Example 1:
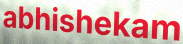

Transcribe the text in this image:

abhishekam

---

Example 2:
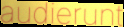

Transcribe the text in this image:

audierunt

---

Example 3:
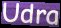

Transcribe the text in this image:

Udra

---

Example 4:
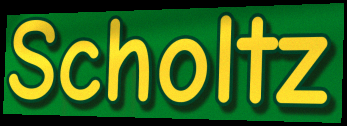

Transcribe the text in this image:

Scholtz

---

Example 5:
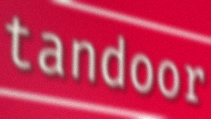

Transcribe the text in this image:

tandoor